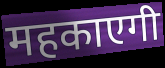
महकाएगी